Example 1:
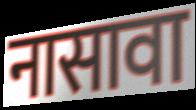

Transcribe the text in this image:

नासावा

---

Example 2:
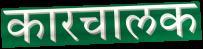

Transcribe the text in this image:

कारचालक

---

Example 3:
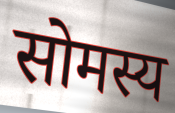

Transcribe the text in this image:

सोमस्य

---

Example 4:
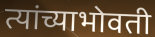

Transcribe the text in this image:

त्यांच्याभोवती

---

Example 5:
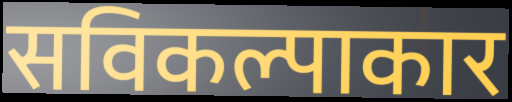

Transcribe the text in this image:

सविकल्पाकार